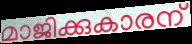
മാജിക്കുകാരന്